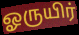
ஓருயிர்